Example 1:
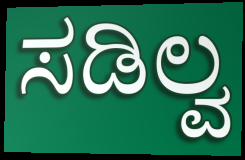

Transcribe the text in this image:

ಸಡಿಲ್ವ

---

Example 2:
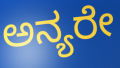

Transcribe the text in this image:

ಅನ್ಯರೇ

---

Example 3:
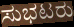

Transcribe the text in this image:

ಸುಭಟರು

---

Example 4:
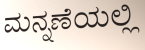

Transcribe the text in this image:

ಮನ್ನಣೆಯಲ್ಲಿ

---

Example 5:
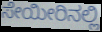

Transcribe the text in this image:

ಸೇಯೀರಿನಲ್ಲಿ